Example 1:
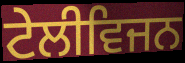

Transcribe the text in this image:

ਟੇਲੀਵਿਜਨ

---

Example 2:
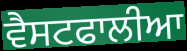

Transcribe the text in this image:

ਵੈਸਟਫਾਲੀਆ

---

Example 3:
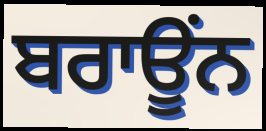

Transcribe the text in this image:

ਬਰਾਊਂਨ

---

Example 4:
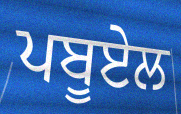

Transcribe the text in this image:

ਪਬੂਏਲ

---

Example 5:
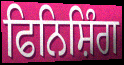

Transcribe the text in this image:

ਫਿਨਿਸ਼ਿੰਗ